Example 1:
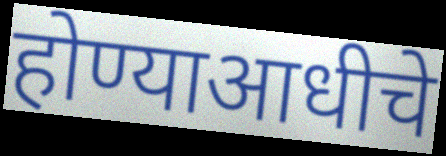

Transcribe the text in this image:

होण्याआधीचे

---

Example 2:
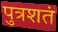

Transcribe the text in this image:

पुत्रशतं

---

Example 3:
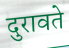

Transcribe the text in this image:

दुरावते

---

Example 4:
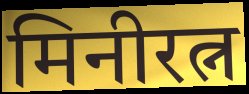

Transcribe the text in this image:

मिनीरत्न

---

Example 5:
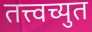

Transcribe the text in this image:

तत्त्वच्युत